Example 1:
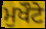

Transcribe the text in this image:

ਮੁਖੌਟੇ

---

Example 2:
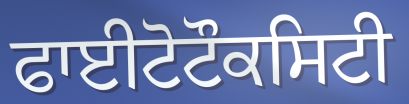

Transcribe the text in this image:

ਫਾਈਟੋਟੌਕਸਿਟੀ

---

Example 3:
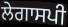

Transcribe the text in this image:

ਲੇਗਾਸਪੀ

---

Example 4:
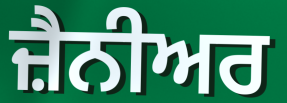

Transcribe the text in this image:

ਜ਼ੈਨੀਅਰ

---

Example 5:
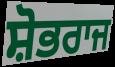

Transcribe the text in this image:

ਸ਼ੋਭਰਾਜ